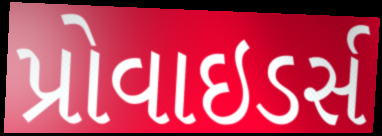
પ્રોવાઇડર્સ